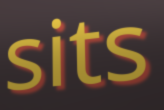
sits